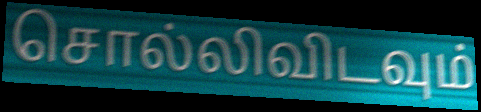
சொல்லிவிடவும்